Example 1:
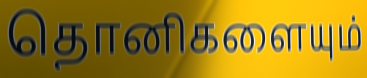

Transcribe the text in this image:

தொனிகளையும்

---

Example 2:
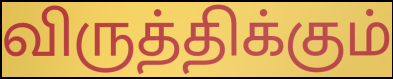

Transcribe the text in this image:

விருத்திக்கும்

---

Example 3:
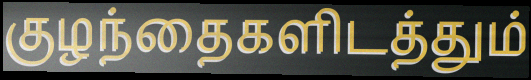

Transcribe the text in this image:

குழந்தைகளிடத்தும்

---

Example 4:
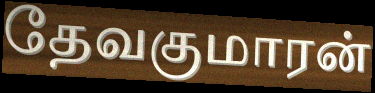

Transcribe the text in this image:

தேவகுமாரன்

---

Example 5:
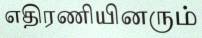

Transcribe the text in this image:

எதிரணியினரும்